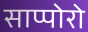
साप्पोरो